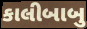
કાલીબાબુ